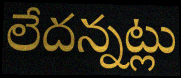
లేదన్నట్లు